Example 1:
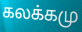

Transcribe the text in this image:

கலக்கமு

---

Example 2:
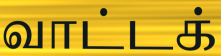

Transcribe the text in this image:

வாட்டக்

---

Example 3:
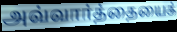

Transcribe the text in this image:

அவ்வார்த்தையைக்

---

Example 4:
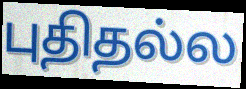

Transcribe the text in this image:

புதிதல்ல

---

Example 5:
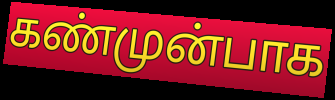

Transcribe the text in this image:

கண்முன்பாக